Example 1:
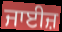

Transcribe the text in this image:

ਜਾਈਜ਼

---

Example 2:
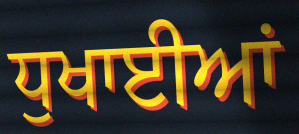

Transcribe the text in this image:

ਧੁਖਾਈਆਂ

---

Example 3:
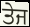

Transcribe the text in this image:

ਤੇਜ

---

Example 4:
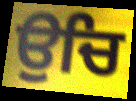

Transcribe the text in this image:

ਉਚਿ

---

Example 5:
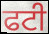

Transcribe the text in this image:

ਫਟੀ